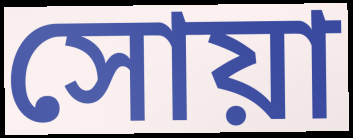
সোয়া